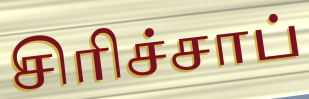
சிரிச்சாப்